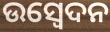
ଉସ୍ୱେଦନ